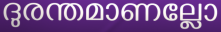
ദുരന്തമാണല്ലോ